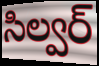
సిల్వర్